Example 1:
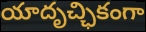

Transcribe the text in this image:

యాదృచ్ఛికంగా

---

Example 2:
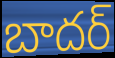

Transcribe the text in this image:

బాదర్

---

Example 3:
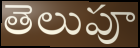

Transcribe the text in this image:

తెలుపూ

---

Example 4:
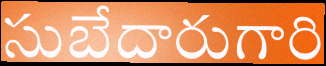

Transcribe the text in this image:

సుబేదారుగారి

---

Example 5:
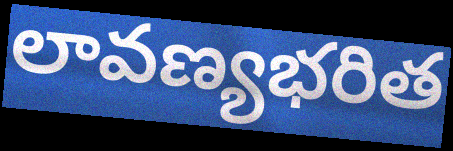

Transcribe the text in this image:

లావణ్యభరిత